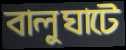
বালুঘাটে